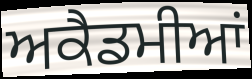
ਅਕੈਡਮੀਆਂ